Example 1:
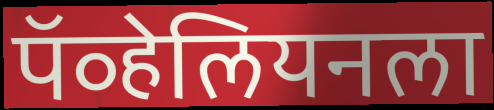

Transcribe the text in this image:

पॅव्हेलियनला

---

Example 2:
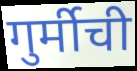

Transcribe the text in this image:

गुर्मीची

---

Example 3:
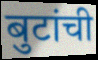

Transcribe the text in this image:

बुटांची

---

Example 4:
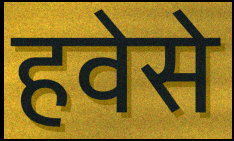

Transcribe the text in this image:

हवेसे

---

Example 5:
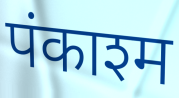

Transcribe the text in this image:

पंकाश्म